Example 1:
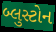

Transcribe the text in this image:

બ્લુસ્ટોન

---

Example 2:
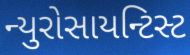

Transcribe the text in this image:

ન્યુરોસાયન્ટિસ્ટ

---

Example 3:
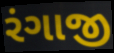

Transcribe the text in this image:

રંગાજી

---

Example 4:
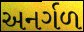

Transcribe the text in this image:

અનર્ગળ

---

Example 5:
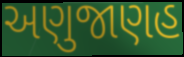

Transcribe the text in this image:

અણુજાણહ